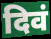
दिवं